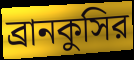
ব্রানকুসির